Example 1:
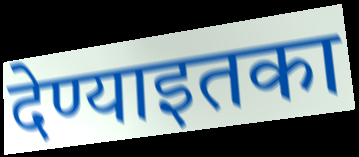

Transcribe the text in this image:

देण्याइतका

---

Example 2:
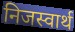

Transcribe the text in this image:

निजस्वार्थ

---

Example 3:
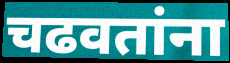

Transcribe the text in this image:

चढवतांना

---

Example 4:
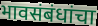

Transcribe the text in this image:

भावसंबंधांचा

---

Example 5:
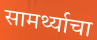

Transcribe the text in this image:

सामर्थ्याचा